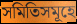
সমিতিসমূহে